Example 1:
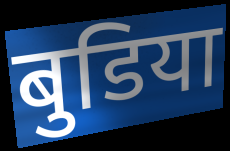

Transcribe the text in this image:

बुडिया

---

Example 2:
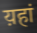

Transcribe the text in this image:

य़हां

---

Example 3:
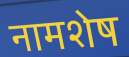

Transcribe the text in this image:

नामशेष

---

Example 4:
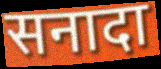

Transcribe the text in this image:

सनादा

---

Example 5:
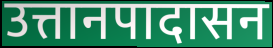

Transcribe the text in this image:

उत्तानपादासन